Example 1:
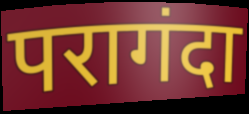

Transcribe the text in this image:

परागंदा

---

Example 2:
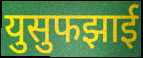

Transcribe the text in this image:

युसुफझाई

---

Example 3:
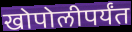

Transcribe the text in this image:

खोपोलीपर्यंत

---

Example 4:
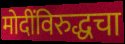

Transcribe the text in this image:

मोदींविरुद्धचा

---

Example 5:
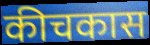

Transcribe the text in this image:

कीचकास